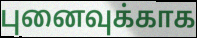
புனைவுக்காக